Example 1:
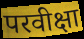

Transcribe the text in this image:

परवीक्षा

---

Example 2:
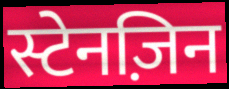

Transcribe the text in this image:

स्टेनज़िन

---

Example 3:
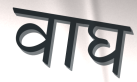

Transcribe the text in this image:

वाघ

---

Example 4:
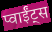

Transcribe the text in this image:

प्वाईंट्स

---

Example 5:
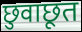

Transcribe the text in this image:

छुवाछूत